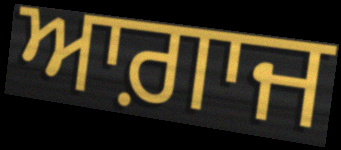
ਆਗ਼ਾਜ